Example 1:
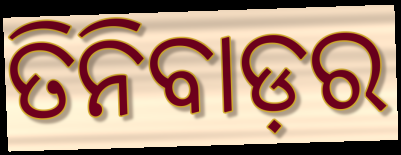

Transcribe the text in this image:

ତିନିବାଡ଼ର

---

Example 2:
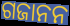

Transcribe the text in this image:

ଗଜାନନ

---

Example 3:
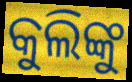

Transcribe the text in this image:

କୁଲିଙ୍କୁ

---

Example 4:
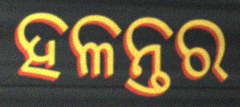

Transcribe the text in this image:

ହଳନ୍ତର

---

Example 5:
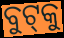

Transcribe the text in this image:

ବୁଟ୍‌କୁ